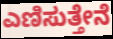
ಎಣಿಸುತ್ತೇನೆ